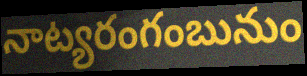
నాట్యరంగంబునుం